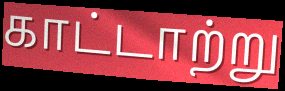
காட்டாற்று